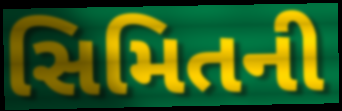
સિમિતની